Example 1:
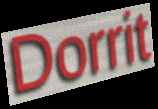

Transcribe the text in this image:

Dorrit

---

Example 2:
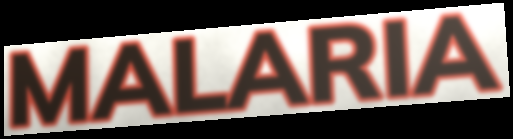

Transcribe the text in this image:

MALARIA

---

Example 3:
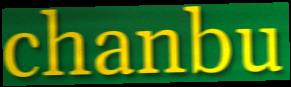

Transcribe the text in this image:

chanbu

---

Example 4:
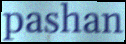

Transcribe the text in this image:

pashan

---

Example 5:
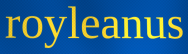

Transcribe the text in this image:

royleanus